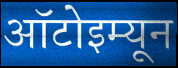
ऑटोइम्यून